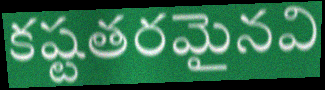
కష్టతరమైనవి